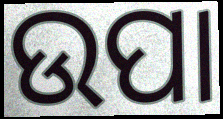
ଉପା